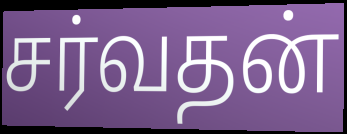
சர்வதன்